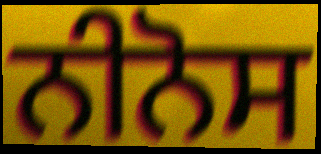
ਨੀਨੋਸ